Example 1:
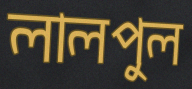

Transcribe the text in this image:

লালপুল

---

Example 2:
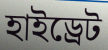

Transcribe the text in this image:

হাইড্রেট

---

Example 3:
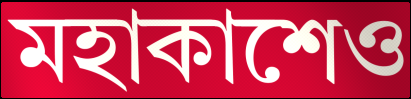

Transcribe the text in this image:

মহাকাশেও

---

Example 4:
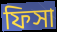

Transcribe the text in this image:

ফিসা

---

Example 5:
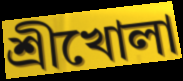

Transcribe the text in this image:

শ্রীখোলা